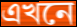
এখনে